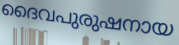
ദൈവപുരുഷനായ